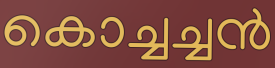
കൊച്ചച്ചൻ